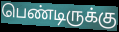
பெண்டிருக்கு